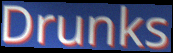
Drunks